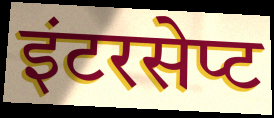
इंटरसेप्‍ट